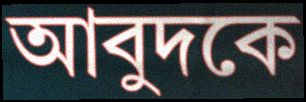
আবুদকে